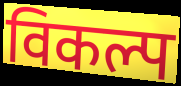
विकल्प